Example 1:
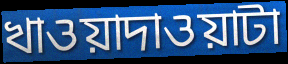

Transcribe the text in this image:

খাওয়াদাওয়াটা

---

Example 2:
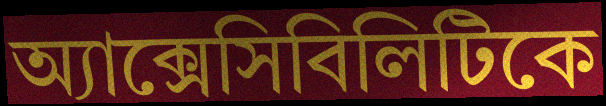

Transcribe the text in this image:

অ্যাক্সেসিবিলিটিকে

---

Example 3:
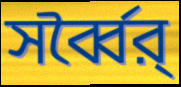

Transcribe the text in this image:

সর্ব্বৈর্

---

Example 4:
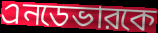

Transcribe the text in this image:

এনডেভারকে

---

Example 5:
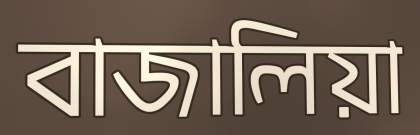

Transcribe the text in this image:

বাজালিয়া